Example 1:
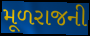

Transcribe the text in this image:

મૂળરાજની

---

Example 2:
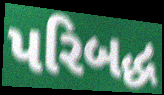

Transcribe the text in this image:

પરિબદ્ધ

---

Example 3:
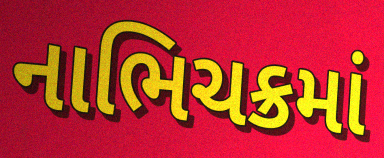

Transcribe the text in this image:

નાભિચક્રમાં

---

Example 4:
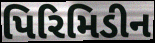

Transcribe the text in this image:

પિરિમિડીન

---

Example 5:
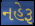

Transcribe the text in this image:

નહેરૂ